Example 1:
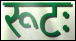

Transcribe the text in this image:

रूटः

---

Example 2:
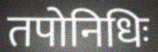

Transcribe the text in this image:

तपोनिधिः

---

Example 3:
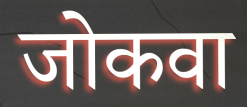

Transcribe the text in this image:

जोकवा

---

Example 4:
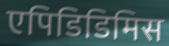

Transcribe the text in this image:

एपिडिडिमिस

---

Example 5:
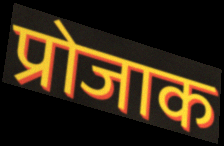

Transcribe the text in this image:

प्रोजाक